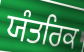
ਯੰਤਰਿਕ